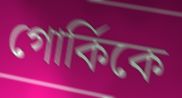
গোর্কিকে